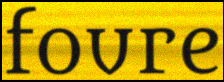
foure